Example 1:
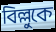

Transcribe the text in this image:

বিল্লুকে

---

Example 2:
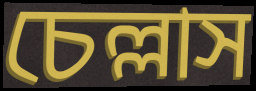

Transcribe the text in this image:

চেল্লাস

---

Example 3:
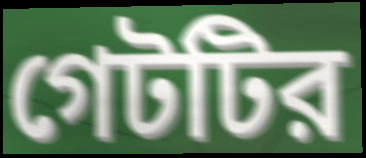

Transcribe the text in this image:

গেটটির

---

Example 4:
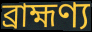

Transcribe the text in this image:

ব্রাহ্মণ্য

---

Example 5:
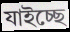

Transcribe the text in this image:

যাইচ্ছে